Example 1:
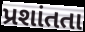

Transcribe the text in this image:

પ્રશાંતતા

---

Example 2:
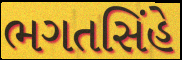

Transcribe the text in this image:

ભગતસિંહે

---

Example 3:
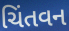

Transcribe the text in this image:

ચિંતવન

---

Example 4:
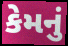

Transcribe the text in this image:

કેમનું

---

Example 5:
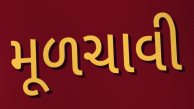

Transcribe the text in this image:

મૂળચાવી